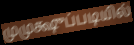
முமுக்ஷுப்படியில்